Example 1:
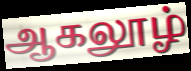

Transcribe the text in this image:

ஆகலூழ்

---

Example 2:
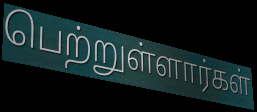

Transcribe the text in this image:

பெற்றுள்ளார்கள்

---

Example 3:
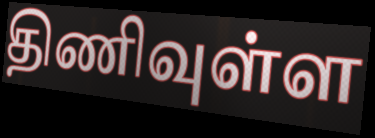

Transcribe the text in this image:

திணிவுள்ள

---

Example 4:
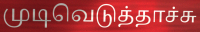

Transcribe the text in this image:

முடிவெடுத்தாச்சு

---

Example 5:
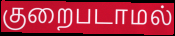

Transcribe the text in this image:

குறைபடாமல்